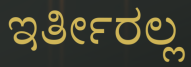
ಇರ್ತೀರಲ್ಲ